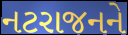
નટરાજનને